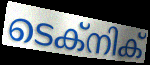
ടെക്നിക്